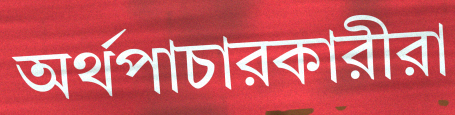
অর্থপাচারকারীরা